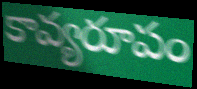
కావ్యరూపం